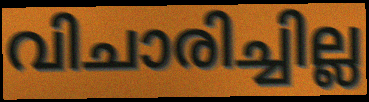
വിചാരിച്ചില്ല